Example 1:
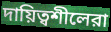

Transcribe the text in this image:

দায়িত্বশীলেরা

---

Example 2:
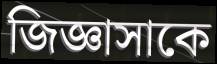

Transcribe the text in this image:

জিজ্ঞাসাকে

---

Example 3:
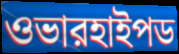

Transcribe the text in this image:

ওভারহাইপড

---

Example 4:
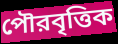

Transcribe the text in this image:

পৌরবৃত্তিক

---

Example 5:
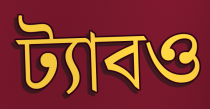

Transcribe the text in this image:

ট্যাবও